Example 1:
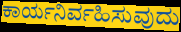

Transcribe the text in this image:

ಕಾರ್ಯನಿರ್ವಹಿಸುವುದು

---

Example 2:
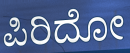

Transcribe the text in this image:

ಪಿರಿದೋ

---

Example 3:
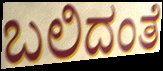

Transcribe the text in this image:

ಬಲಿದಂತೆ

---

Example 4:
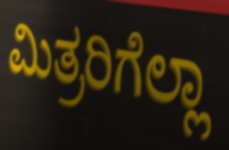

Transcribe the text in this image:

ಮಿತ್ರರಿಗೆಲ್ಲಾ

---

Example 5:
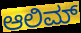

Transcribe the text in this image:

ಆಲಿಮ್